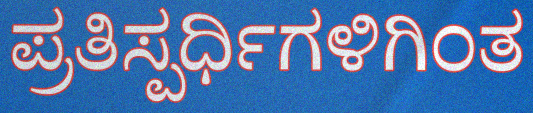
ಪ್ರತಿಸ್ಪರ್ಧಿಗಳಿಗಿಂತ